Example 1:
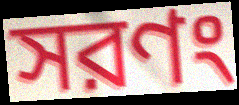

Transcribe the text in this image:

সরণং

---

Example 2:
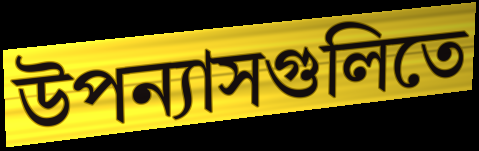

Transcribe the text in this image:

উপন্যাসগুলিতে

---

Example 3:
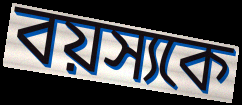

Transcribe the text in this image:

বয়স্যকে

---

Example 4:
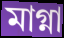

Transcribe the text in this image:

মাগ্না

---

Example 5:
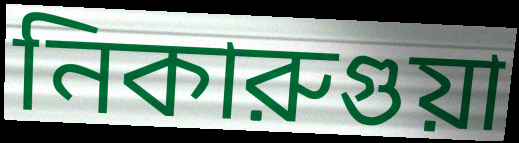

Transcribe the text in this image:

নিকারুগুয়া